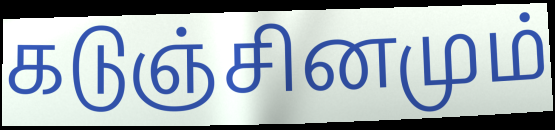
கடுஞ்சினமும்